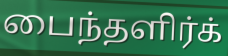
பைந்தளிர்க்